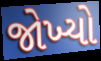
જોખ્યો